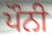
ਪੌਨੀ